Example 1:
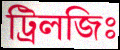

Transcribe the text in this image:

ট্রিলজিঃ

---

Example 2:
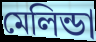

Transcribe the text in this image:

মেলিন্ডা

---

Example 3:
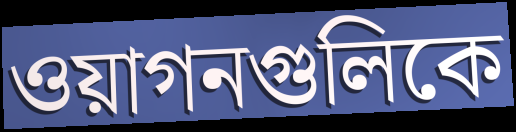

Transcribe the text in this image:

ওয়াগনগুলিকে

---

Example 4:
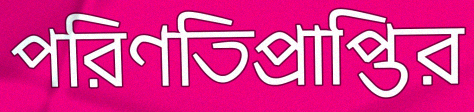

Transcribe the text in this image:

পরিণতিপ্রাপ্তির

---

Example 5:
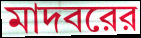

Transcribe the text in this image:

মাদবরের